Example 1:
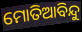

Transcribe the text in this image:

ମୋତିଆବିନ୍ଦୁ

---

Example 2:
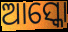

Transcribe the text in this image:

ଆସ୍କୋ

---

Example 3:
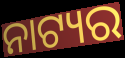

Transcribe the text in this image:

ନାଟ୍ୟର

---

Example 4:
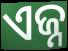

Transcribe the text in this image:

ଏଜ୍ନ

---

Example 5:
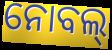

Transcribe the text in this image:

ନୋବଲ୍